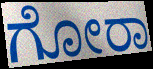
ಗೋರಾ